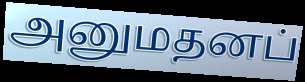
அனுமதனப்